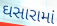
ઘસારામાં